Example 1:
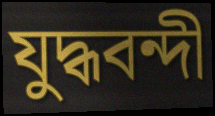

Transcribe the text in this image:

যুদ্ধবন্দী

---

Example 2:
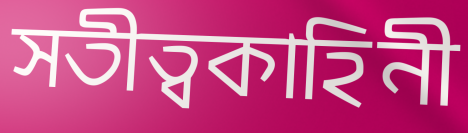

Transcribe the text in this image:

সতীত্বকাহিনী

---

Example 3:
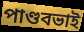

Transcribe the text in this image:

পাণ্ডবভাই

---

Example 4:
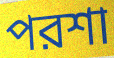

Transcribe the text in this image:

পরশা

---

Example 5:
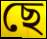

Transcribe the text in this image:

ছে